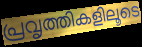
പ്രവൃത്തികളിലൂടെ